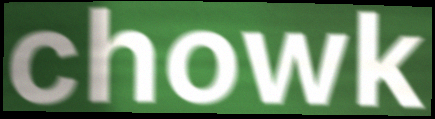
chowk